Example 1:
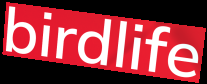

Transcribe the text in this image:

birdlife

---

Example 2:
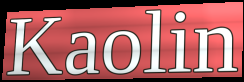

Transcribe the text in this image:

Kaolin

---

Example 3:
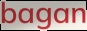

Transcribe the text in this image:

bagan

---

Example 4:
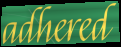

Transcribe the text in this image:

adhered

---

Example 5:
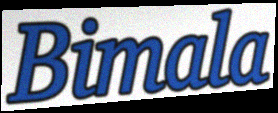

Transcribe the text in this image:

Bimala